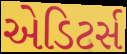
એડિટર્સ